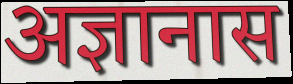
अज्ञानास